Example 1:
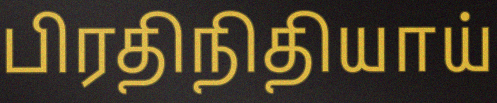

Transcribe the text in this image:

பிரதிநிதியாய்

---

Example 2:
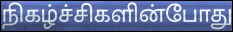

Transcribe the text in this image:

நிகழ்ச்சிகளின்போது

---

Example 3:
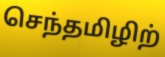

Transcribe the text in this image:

செந்தமிழிற்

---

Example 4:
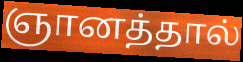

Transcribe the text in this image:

ஞானத்தால்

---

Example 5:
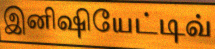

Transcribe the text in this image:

இனிஷியேட்டிவ்